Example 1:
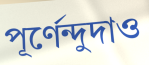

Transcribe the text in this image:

পূর্ণেন্দুদাও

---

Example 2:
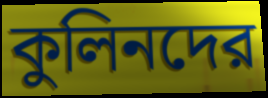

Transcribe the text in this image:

কুলিনদের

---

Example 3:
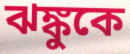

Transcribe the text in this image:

ঝঙ্কুকে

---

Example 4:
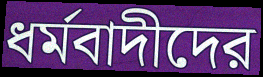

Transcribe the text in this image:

ধর্মবাদীদের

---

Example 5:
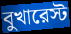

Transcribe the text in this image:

বুখারেস্ট